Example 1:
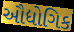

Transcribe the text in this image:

ઔદ્યોગિક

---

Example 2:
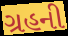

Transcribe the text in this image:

ગ્રહની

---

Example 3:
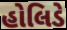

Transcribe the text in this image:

હોલિડે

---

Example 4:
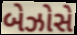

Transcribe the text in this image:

બેઝોસે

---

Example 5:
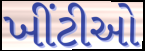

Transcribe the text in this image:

ખીંટીઓ